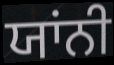
ਯਾਂਨੀ